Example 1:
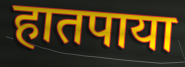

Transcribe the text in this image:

हातपाया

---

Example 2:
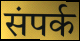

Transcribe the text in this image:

संपर्क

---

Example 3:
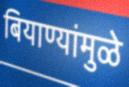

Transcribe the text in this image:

बियाण्यांमुळे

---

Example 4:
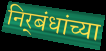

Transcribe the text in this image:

निर्बंधांच्या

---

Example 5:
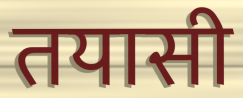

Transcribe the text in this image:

तयासी